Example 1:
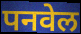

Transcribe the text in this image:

पनवेल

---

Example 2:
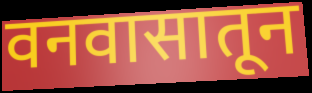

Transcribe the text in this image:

वनवासातून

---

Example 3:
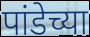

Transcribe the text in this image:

पांडेच्या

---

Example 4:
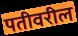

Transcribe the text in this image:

पतीवरील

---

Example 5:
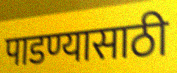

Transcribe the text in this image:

पाडण्यासाठी